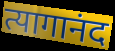
त्यागानंद